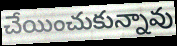
చేయించుకున్నావు